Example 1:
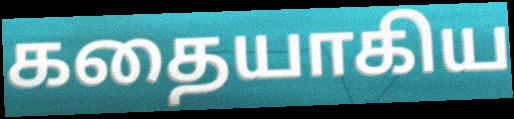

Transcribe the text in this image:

கதையாகிய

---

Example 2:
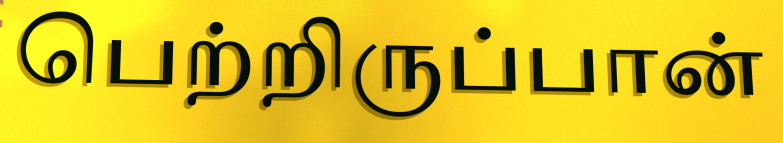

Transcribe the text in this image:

பெற்றிருப்பான்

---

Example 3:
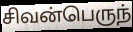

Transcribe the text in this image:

சிவன்பெருந்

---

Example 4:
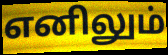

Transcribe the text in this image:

எனிலும்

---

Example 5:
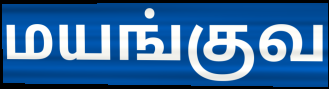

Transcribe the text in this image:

மயங்குவ